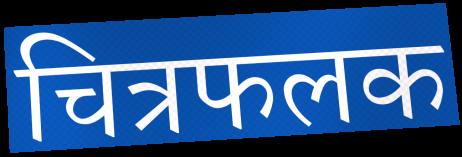
चित्रफलक